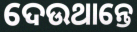
ଦେଉଥାନ୍ତେ